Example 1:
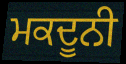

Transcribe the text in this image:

ਮਕਦੂਨੀ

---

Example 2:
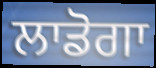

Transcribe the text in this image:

ਲਾਡੋਗਾ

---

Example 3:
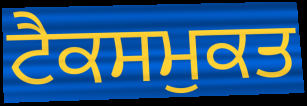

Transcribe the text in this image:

ਟੈਕਸਮੁਕਤ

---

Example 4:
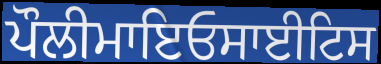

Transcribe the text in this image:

ਪੌਲੀਮਾਇਓਸਾਈਟਿਸ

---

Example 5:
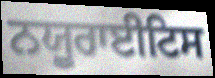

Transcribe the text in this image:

ਨਯੂਰਾਈਟਿਸ